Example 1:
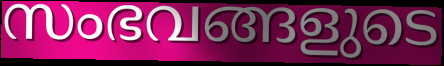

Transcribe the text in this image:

സംഭവങ്ങളുടെ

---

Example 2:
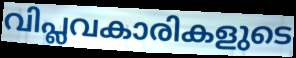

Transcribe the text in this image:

വിപ്ലവകാരികളുടെ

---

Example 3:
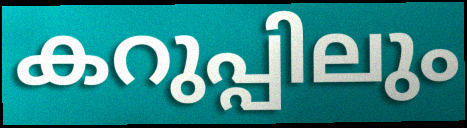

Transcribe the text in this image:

കറുപ്പിലും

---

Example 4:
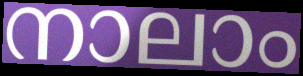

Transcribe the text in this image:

നാലാം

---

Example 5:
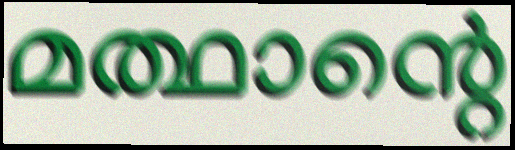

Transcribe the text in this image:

മത്ഥാന്റെ